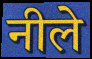
नीले